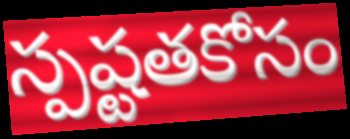
స్పష్టతకోసం